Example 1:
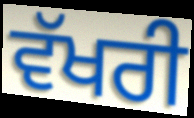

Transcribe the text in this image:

ਵੱਖਰੀ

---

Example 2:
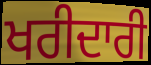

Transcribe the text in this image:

ਖਰੀਦਾਰੀ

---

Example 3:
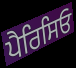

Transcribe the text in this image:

ਪੈਰਿਸਿਓ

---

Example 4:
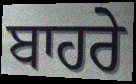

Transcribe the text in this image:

ਬਾਹਰੇ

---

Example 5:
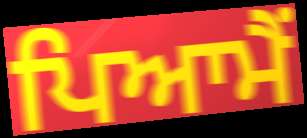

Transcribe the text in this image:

ਪਿਆਮੈਂ